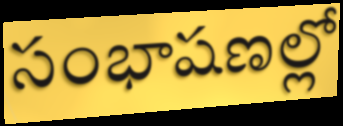
సంభాషణల్లో